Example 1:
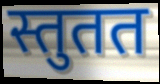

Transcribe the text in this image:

स्तुतत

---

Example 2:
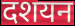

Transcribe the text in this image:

दशयन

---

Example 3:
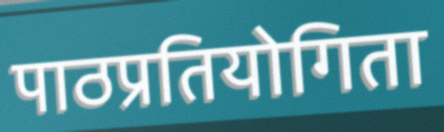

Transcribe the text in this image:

पाठप्रतियोगिता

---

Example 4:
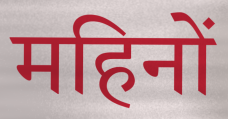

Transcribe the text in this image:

महिनों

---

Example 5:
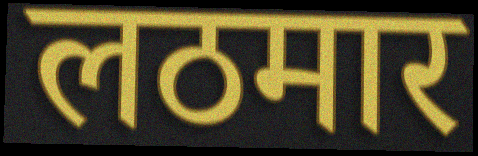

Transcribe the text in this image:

लठमार